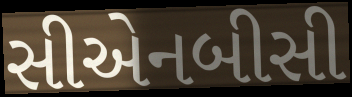
સીએનબીસી